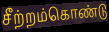
சீற்றம்கொண்டு